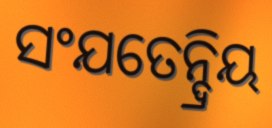
ସଂଯତେନ୍ଦ୍ରିୟ